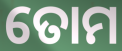
ତୋମ